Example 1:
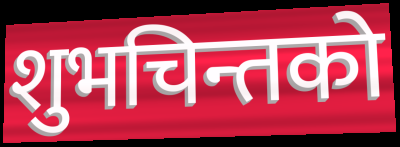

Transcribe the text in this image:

शुभचिन्तको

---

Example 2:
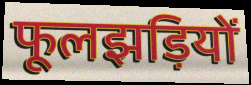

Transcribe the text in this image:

फूलझड़ियों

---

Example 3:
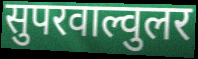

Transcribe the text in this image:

सुपरवाल्वुलर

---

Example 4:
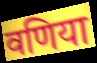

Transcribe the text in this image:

वणिया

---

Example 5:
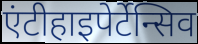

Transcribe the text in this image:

एंटीहाइपेर्टेन्सिव